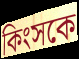
কিংসকে